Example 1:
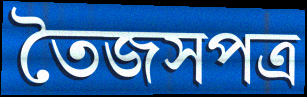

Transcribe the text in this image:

তৈজসপত্র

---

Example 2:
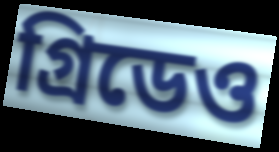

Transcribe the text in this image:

গ্রিডেও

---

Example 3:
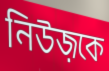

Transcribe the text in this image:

নিউজ়কে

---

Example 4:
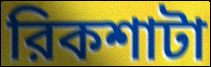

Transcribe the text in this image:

রিকশাটা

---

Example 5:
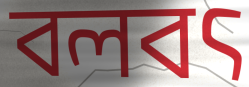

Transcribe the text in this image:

বলবৎ